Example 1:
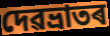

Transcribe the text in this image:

দেৱভ্ৰাতৰ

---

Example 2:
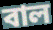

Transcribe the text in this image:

বাল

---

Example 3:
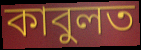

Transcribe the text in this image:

কাবুলত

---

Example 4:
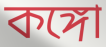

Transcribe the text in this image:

কঙ্গো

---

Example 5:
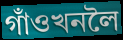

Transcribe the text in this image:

গাঁওখনলৈ